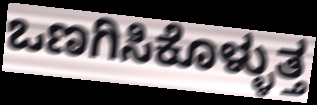
ಒಣಗಿಸಿಕೊಳ್ಳುತ್ತ